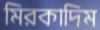
মিরকাদিম